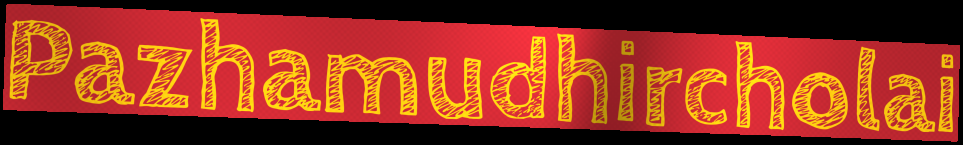
Pazhamudhircholai